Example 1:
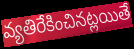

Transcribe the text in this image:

వ్యతిరేకించినట్లయితే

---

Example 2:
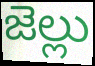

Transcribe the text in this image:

జెల్లు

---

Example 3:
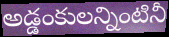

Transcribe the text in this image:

అడ్డంకులన్నింటినీ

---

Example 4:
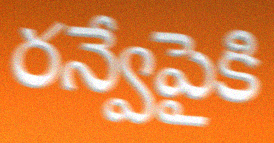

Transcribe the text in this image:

రన్వేపైకి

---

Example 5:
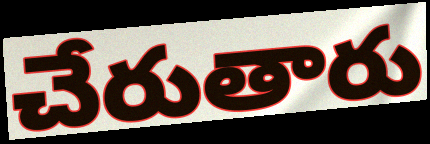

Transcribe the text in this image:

చేరుతారు